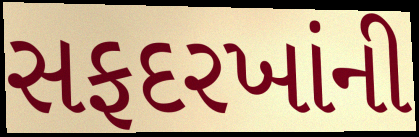
સફદરખાંની